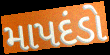
માપદંડો